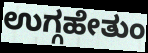
ಉಗ್ಗಹೇತುಂ